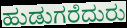
ಹುಡುಗರೆದುರು